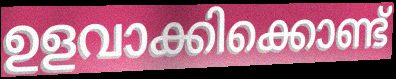
ഉളവാക്കിക്കൊണ്ട്